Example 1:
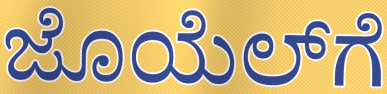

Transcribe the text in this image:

ಜೊಯೆಲ್‌ಗೆ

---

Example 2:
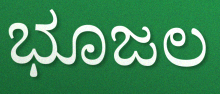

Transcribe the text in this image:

ಭೂಜಲ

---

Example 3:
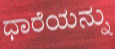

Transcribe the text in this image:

ಧಾರೆಯನ್ನು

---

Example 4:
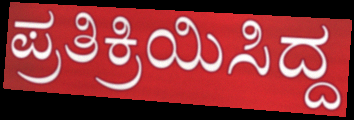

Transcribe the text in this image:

ಪ್ರತಿಕ್ರಿಯಿಸಿದ್ದ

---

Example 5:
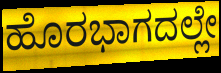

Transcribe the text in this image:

ಹೊರಭಾಗದಲ್ಲೇ